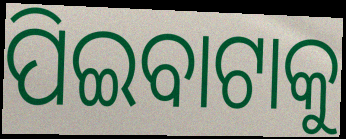
ପିଇବାଟାକୁ